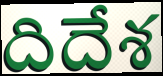
దిదేశ